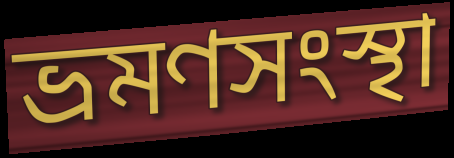
ভ্রমণসংস্থা